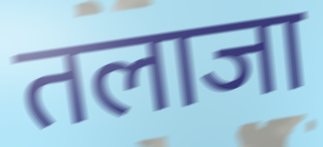
तलाजा